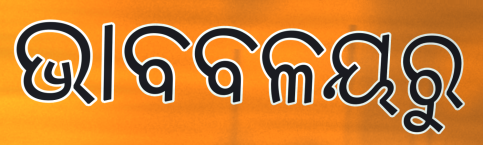
ଭାବବଳୟରୁ